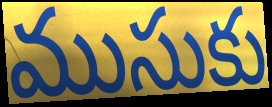
ముసుకు